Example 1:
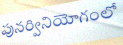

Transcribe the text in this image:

పునర్వినియోగంలో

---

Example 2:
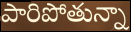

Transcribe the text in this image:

పారిపోతున్నా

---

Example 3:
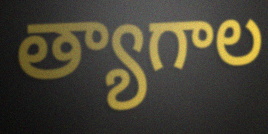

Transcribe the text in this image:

త్యాగాల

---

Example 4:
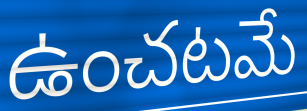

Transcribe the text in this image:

ఉంచటమే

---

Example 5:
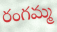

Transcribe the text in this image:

రంగమ్మ